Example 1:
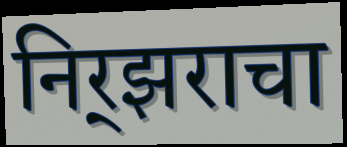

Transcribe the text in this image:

निर्झराचा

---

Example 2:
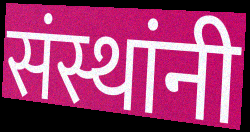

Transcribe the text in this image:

संस्थांनी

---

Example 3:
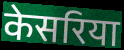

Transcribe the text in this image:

केसरिया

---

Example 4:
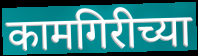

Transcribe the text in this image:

कामगिरीच्या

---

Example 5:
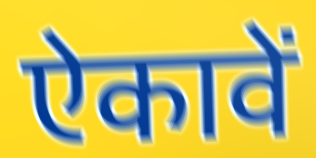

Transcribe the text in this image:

ऐकावें